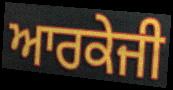
ਆਰਕੇਜੀ